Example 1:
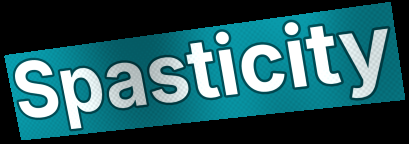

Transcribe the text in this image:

Spasticity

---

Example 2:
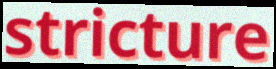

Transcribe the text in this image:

stricture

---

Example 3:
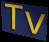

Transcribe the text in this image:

Tv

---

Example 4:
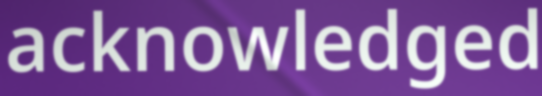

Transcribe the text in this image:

acknowledged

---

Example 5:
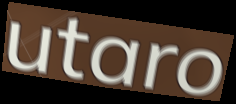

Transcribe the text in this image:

utaro